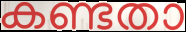
കണ്ടതാ